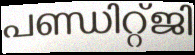
പണ്ഡിറ്റ്ജി